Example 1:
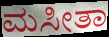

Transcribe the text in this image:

ಮಸೀತಾ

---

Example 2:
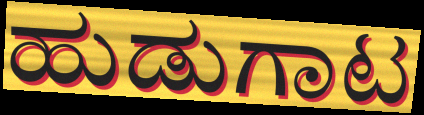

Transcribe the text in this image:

ಹುಡುಗಾಟ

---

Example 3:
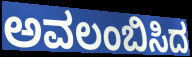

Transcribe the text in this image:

ಅವಲಂಬಿಸಿದ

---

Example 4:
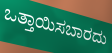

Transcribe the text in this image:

ಒತ್ತಾಯಿಸಬಾರದು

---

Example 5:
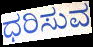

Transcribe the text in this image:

ಧರಿಸುವ